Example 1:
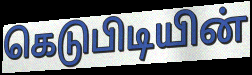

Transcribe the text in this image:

கெடுபிடியின்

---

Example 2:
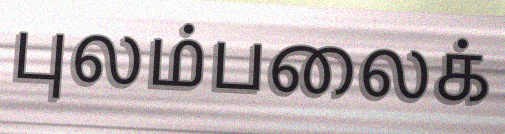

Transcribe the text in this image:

புலம்பலைக்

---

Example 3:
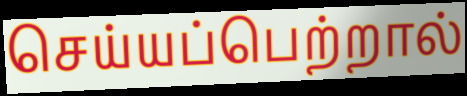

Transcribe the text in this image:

செய்யப்பெற்றால்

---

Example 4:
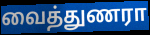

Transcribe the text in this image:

வைத்துணரா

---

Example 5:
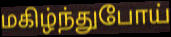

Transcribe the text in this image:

மகிழ்ந்துபோய்